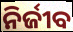
ନିର୍ଜୀବ